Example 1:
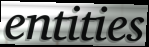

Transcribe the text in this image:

entities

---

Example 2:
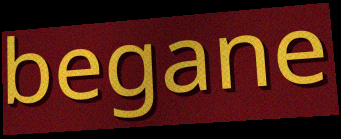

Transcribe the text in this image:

begane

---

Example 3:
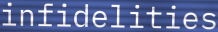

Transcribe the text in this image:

infidelities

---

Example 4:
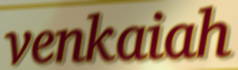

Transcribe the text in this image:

venkaiah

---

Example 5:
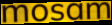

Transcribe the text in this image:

mosam